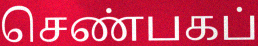
செண்பகப்